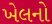
ખેલનો